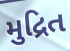
મુદ્રિત